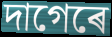
দাগেৰে